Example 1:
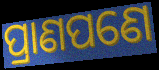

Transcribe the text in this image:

ପ୍ରାଣପଣେ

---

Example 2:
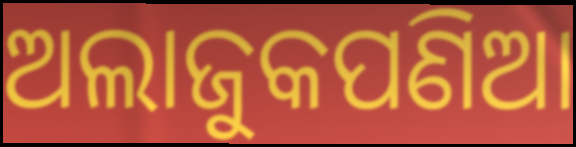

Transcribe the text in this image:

ଅଲାଜୁକପଣିଆ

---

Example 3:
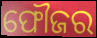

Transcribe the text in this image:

ଫୌଜର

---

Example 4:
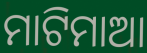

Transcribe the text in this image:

ମାଟିମାଆ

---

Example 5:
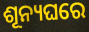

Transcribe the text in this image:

ଶୂନ୍ୟଘରେ